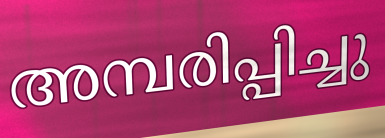
അമ്പരിപ്പിച്ചു